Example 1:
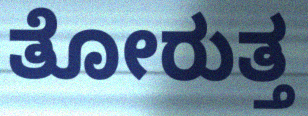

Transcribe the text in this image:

ತೋರುತ್ತ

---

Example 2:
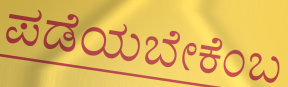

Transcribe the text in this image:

ಪಡೆಯಬೇಕೆಂಬ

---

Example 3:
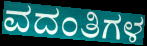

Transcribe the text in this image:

ವದಂತಿಗಳ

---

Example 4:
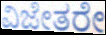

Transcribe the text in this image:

ವಿಜೇತರೇ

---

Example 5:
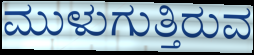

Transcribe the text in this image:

ಮುಳುಗುತ್ತಿರುವ